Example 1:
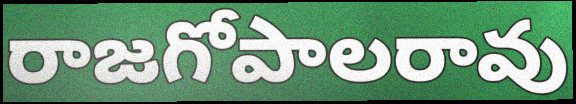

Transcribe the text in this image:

రాజగోపాలరావు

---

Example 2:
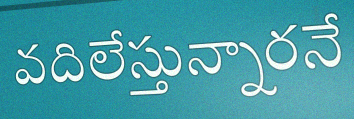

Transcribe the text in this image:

వదిలేస్తున్నారనే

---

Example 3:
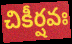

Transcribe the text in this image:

చికీర్షవః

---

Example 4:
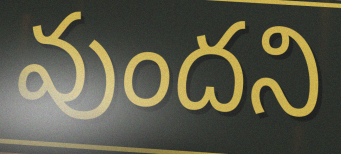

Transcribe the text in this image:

వుందని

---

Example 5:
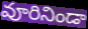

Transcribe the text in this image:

వూరినిండా